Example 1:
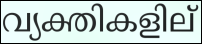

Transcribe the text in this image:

വ്യക്തികളില്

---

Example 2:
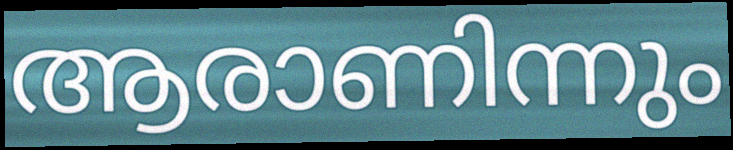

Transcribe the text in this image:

ആരാണിന്നും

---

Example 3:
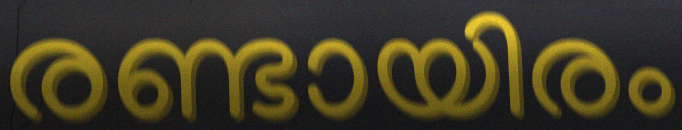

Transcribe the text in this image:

രണ്ടായിരം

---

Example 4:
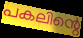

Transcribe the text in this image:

പകലിന്റെ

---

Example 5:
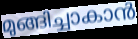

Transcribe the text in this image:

മുങ്ങിച്ചാകാൻ